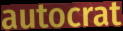
autocrat